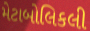
મેટાબોલિકલી